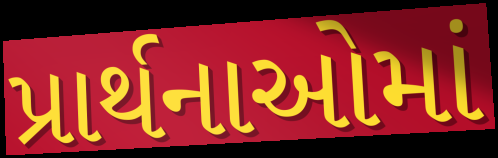
પ્રાર્થનાઓમાં